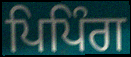
ਪਿਪਿੰਗ